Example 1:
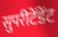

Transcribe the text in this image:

सुपरीटेंडेंट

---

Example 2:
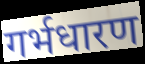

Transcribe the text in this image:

गर्भधारण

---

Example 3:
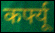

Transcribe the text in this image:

कर्फ्यू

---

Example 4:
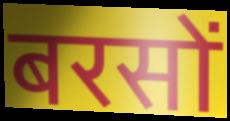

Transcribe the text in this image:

बरसों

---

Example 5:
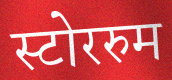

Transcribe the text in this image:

स्टोररुम